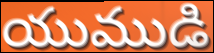
యుముడి